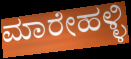
ಮಾರೇಹಳ್ಳಿ